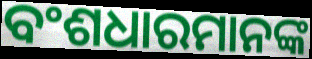
ବଂଶଧାରମାନଙ୍କ